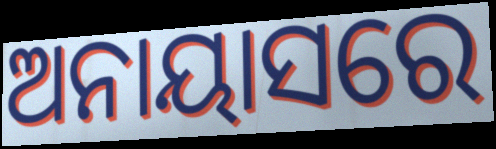
ଅନାୟାସରେ